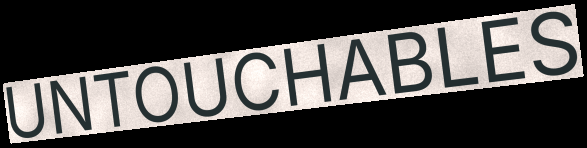
UNTOUCHABLES